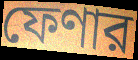
ফেণার